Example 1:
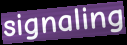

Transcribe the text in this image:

signaling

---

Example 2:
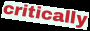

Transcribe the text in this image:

critically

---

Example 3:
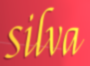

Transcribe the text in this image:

silva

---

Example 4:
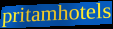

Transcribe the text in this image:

pritamhotels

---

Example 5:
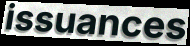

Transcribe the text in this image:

issuances